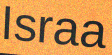
Israa